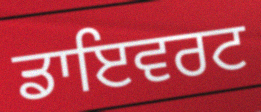
ਡਾਇਵਰਟ